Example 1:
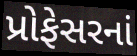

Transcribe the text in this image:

પ્રોફેસરનાં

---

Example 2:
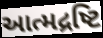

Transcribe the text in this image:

આત્મદ્રષ્ટિ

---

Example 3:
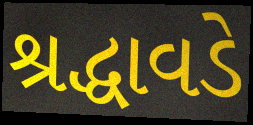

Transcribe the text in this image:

શ્રદ્ધાવડે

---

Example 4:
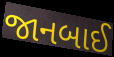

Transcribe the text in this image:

જાનબાઈ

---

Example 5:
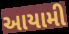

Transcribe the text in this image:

આયામી